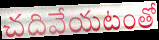
చదివేయటంతో